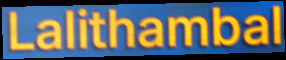
Lalithambal